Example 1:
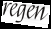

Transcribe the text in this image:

regen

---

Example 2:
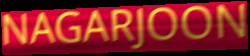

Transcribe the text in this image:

NAGARJOON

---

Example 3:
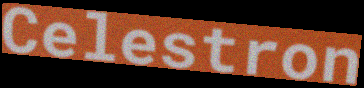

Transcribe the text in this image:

Celestron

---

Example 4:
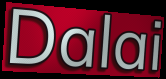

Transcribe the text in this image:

Dalai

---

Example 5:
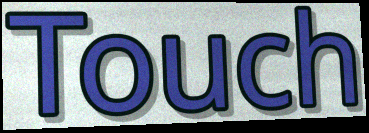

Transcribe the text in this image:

Touch